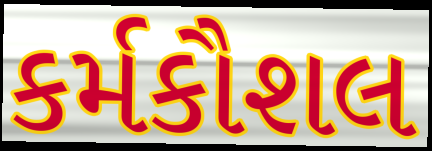
કર્મકૌશલ